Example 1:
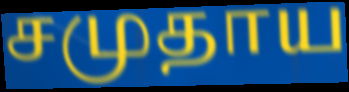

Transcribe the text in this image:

சமுதாய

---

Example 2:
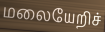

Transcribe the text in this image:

மலையேறிச்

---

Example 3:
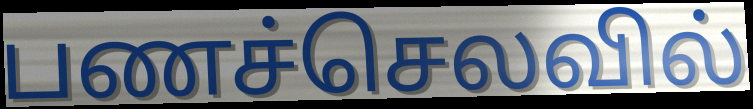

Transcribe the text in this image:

பணச்செலவில்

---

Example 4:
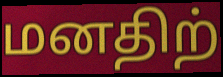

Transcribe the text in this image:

மனதிற்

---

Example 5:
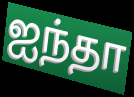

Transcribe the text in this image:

ஐந்தா